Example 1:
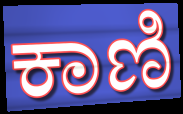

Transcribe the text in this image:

ಕಾಣಿ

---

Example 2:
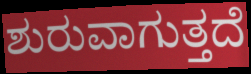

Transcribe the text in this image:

ಶುರುವಾಗುತ್ತದೆ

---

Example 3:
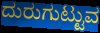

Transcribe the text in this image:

ದುರುಗುಟ್ಟುವ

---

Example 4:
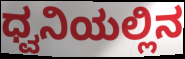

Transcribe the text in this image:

ಧ್ವನಿಯಲ್ಲಿನ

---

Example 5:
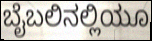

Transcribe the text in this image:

ಬೈಬಲಿನಲ್ಲಿಯೂ